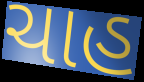
ચાહ